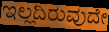
ಇಲ್ಲದಿರುವುದೇ